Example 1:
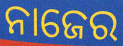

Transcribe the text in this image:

ନାଜେର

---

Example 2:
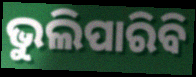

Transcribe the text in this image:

ଭୁଲିପାରିବି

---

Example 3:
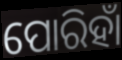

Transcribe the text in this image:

ପୋରିହାଁ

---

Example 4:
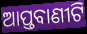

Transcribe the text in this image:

ଆପ୍ତବାଣୀଟି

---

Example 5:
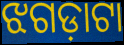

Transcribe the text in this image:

ଝଗଡ଼ାଟା